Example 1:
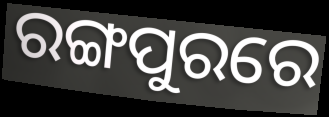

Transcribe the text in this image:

ରଙ୍ଗପୁରରେ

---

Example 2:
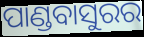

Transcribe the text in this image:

ପାଣ୍ଡବାସୁରର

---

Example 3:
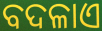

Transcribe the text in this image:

ବଦଳାଏ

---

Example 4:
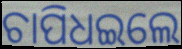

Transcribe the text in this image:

ଚାପିଧଇଲେ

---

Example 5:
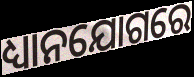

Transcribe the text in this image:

ଧ୍ୟାନଯୋଗରେ